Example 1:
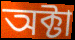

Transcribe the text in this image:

অক্টা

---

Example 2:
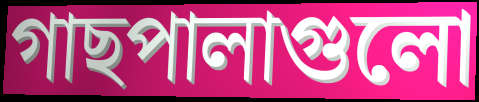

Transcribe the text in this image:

গাছপালাগুলো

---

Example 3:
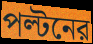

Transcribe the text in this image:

পল্টনের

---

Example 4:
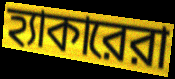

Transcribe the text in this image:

হ্যাকারেরা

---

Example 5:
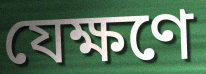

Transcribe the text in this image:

যেক্ষণে